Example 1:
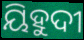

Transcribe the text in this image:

ୟିହୁଦୀ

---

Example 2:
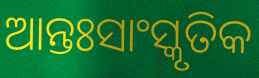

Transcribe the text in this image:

ଆନ୍ତଃସାଂସ୍କୃତିକ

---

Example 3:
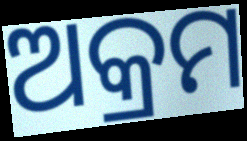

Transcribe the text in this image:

ଅକ୍ରମ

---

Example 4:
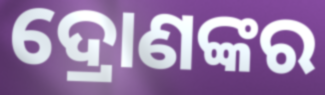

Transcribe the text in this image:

ଦ୍ରୋଣଙ୍କର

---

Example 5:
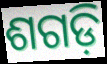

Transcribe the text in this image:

ଶଗଡ଼ି